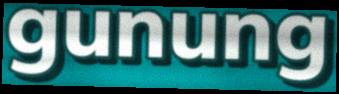
gunung